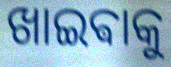
ଖାଇଵାକୁ